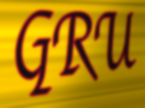
GRU